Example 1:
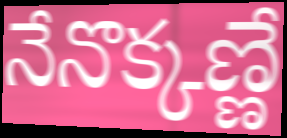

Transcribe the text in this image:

నేనొక్కణ్ణే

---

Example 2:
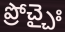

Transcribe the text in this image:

ప్రోచ్చైః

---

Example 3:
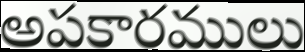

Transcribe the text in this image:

అపకారములు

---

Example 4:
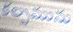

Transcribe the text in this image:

కల్పమును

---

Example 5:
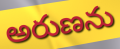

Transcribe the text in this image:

అరుణను